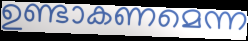
ഉണ്ടാകണമെന്ന